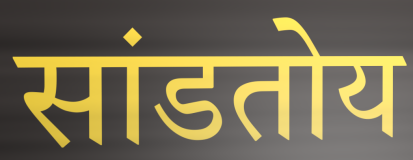
सांडतोय